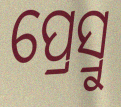
ପ୍ରେସ୍ରୁ